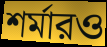
শর্মারও